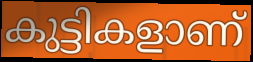
കുട്ടികളാണ്